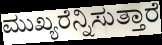
ಮುಖ್ಯರೆನ್ನಿಸುತ್ತಾರೆ